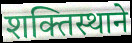
शक्तिस्थाने